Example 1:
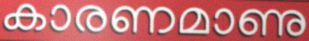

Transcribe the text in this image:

കാരണമാണു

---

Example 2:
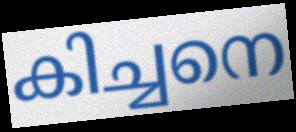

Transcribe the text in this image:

കിച്ചനെ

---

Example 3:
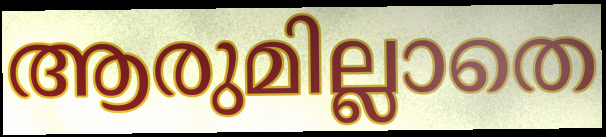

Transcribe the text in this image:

ആരുമില്ലാതെ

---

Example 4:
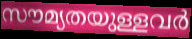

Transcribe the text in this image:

സൗമ്യതയുള്ളവർ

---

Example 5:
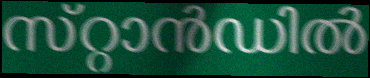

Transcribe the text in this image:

സ്‌റ്റാൻഡിൽ